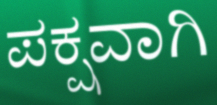
ಪಕ್ಷವಾಗಿ